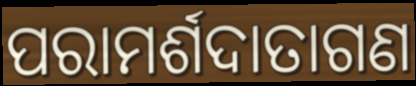
ପରାମର୍ଶଦାତାଗଣ